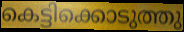
കെട്ടിക്കൊടുത്തു